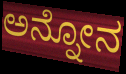
ಅನ್ನೋನ